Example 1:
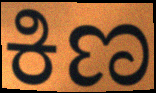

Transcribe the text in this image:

ಕಿಣ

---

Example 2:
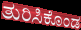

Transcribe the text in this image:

ತುರಿಸಿಕೊಂಡ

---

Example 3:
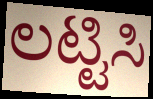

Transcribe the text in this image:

ಲಟ್ಟಿಸಿ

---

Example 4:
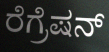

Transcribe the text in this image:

ರೆಗ್ರೆಷನ್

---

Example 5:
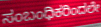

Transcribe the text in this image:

ಸಂಬಂಧಿಕರಿಂದಲೇ